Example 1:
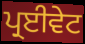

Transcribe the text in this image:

ਪ੍ਰਈਵੇਟ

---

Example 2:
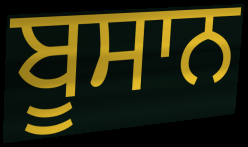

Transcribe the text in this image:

ਬੂਸਾਨ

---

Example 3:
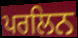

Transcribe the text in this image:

ਪਰਲਿਨ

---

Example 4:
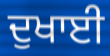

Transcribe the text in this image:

ਦੁਖਾਈ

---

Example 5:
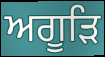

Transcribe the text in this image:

ਅਗੂੜਿ